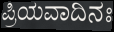
ಪ್ರಿಯವಾದಿನಃ